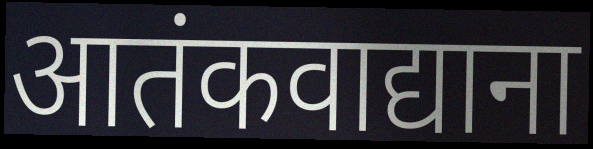
आतंकवाद्याना